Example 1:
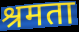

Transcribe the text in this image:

श्रमता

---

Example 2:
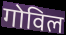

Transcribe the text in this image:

गोविल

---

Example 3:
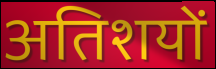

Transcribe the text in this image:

अतिशयों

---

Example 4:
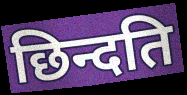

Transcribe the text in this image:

छिन्दति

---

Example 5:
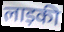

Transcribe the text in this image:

लाड़की